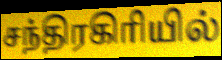
சந்திரகிரியில்